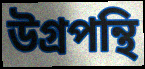
উগ্রপন্থি